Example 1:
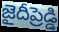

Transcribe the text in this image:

జైదీప్రెడ్డి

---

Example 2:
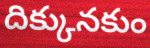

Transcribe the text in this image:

దిక్కునకుం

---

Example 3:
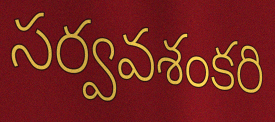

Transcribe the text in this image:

సర్వవశంకరి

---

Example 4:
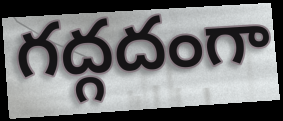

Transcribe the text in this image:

గద్గదంగా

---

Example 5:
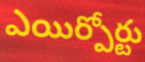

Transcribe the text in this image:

ఎయిర్పోర్టు